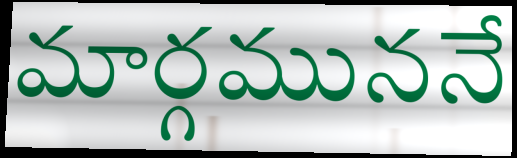
మార్గముననే